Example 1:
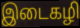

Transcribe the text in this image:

இடைகழி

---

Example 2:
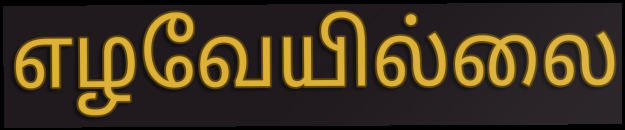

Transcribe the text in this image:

எழவேயில்லை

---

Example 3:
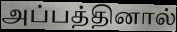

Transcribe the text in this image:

அப்பத்தினால்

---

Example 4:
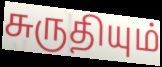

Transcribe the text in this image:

சுருதியும்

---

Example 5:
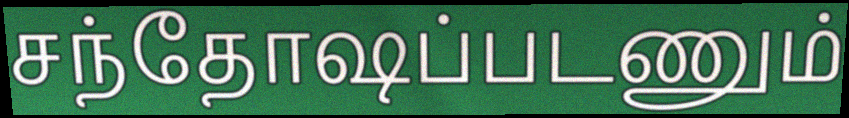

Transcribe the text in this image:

சந்தோஷப்படணும்